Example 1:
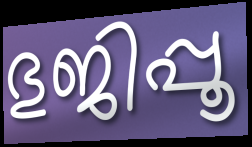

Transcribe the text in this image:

ഭുജിപ്പൂ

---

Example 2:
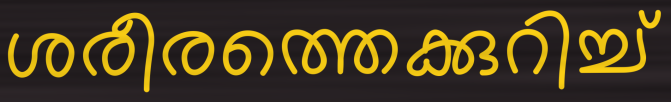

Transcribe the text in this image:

ശരീരത്തെക്കുറിച്ച്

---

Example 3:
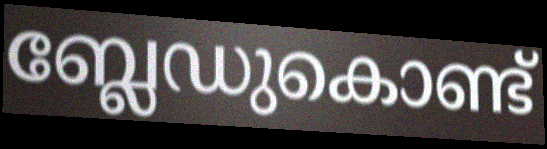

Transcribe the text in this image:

ബ്ലേഡുകൊണ്ട്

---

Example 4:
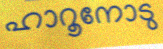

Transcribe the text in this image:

ഹാറൂനോടു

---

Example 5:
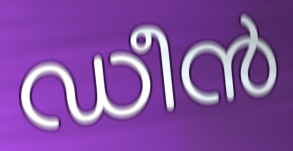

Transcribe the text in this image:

ഡീൻ